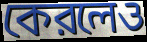
কেরলেও